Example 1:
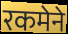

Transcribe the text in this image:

रकमेने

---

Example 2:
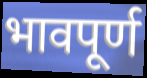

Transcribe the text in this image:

भावपूर्ण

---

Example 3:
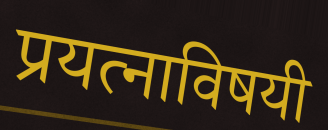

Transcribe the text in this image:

प्रयत्नाविषयी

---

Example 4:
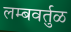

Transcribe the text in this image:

लम्बवर्तुळ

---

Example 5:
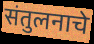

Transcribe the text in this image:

संतुलनाचे